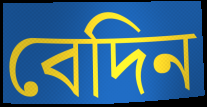
বেদিন